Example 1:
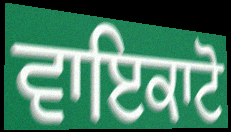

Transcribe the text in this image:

ਵਾਇਕਾਟੋ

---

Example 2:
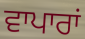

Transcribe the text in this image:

ਵਾਪਾਰਾਂ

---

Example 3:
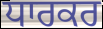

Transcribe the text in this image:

ਧਾਰਕਰ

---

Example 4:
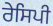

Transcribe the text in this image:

ਰੇਸਿਪੀ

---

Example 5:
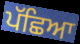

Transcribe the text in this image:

ਪੱਛਿਆ